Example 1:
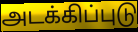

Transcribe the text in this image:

அடக்கிப்புடு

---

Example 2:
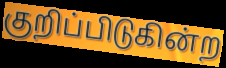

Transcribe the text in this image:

குறிப்பிடுகின்ற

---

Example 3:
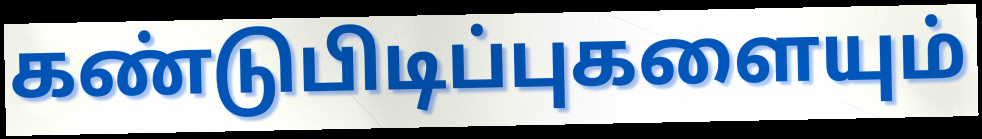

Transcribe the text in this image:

கண்டுபிடிப்புகளையும்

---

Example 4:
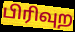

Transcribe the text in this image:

பிரிவுற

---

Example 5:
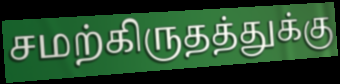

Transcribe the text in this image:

சமற்கிருதத்துக்கு